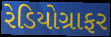
રેડિયોગ્રાફર